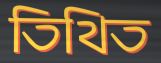
তিথিত